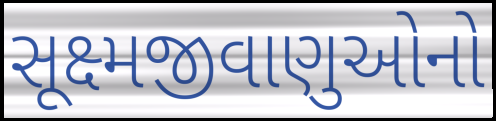
સૂક્ષ્મજીવાણુઓનો